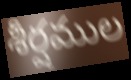
శీర్షముల